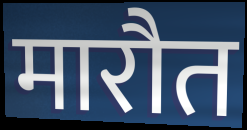
मारौत